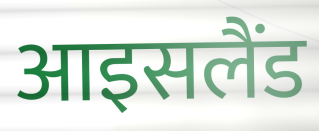
आइसलैंड